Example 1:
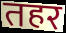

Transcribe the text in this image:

तहर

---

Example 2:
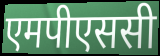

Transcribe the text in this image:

एमपीएससी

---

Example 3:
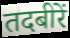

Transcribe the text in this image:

तदबीरें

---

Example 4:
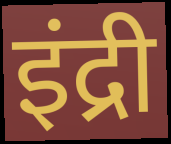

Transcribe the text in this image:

इंद्री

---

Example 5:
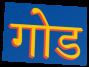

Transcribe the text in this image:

गोड